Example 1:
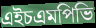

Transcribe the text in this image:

এইচএমপিভি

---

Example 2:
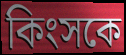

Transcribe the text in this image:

কিংসকে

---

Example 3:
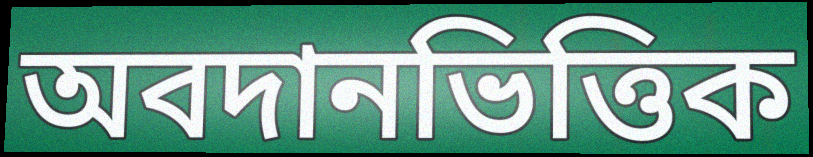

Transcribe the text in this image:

অবদানভিত্তিক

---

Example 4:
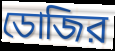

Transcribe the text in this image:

ডোজির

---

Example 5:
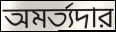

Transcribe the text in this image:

অমর্ত্যদার